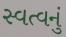
સ્વત્વનું